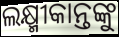
ଲକ୍ଷ୍ମୀକାନ୍ତଙ୍କୁ